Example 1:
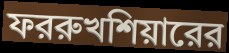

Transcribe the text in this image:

ফররুখশিয়ারের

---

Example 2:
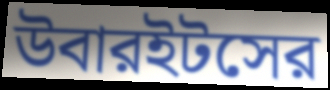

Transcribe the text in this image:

উবারইটসের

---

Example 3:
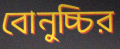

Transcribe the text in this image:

বোনুচ্চির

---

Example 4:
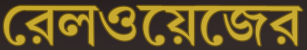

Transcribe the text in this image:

রেলওয়েজের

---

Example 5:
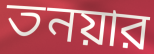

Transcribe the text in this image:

তনয়ার